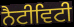
ਨੈਟੀਵਿਟੀ